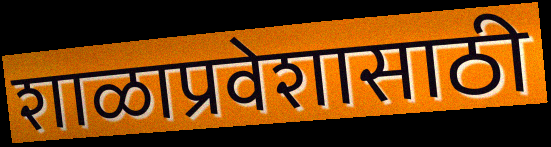
शाळाप्रवेशासाठी